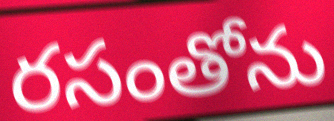
రసంతోను